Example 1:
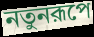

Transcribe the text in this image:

নতুনরূপে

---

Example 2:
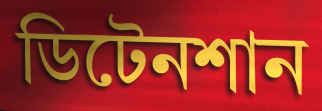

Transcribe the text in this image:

ডিটেনশান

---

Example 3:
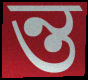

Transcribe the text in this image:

ন্ত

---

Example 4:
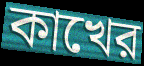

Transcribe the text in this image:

কাখের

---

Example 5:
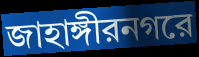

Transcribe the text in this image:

জাহাঙ্গীরনগরে